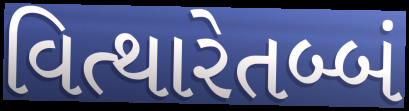
વિત્થારેતબ્બં